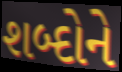
શબ્દોને